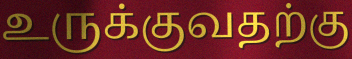
உருக்குவதற்கு